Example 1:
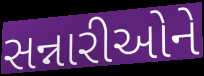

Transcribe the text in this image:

સન્નારીઓને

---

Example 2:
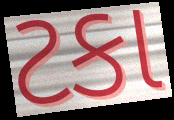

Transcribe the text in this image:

ટકા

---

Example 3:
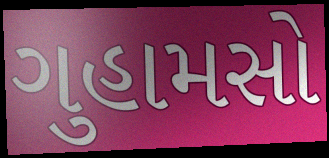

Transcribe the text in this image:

ગુહામસો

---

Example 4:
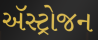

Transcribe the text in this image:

ઍસ્ટ્રોજન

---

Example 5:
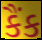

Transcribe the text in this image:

કૈંક